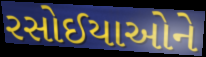
રસોઈયાઓને